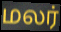
மலர்